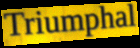
Triumphal